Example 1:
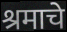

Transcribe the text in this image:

श्रमाचे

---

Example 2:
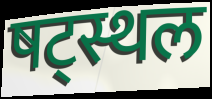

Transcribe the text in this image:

षट्स्थल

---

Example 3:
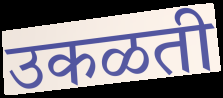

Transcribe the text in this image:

उकळती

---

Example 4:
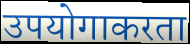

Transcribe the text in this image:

उपयोगाकरता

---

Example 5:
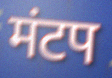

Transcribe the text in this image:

मंटप